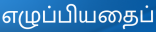
எழுப்பியதைப்